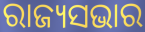
ରାଜ୍ୟସଭାର